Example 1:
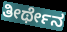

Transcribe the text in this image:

ತೀರ್ಥೇನ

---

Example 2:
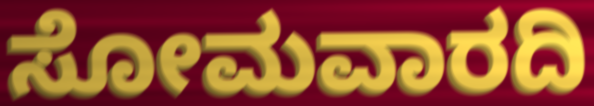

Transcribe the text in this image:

ಸೋಮವಾರದಿ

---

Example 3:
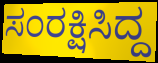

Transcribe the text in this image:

ಸಂರಕ್ಷಿಸಿದ್ದ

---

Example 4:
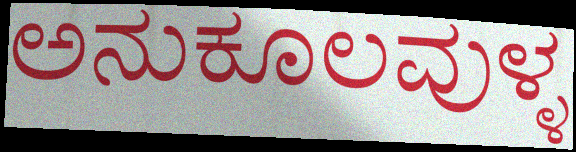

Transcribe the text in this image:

ಅನುಕೂಲವುಳ್ಳ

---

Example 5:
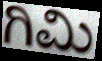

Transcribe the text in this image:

ಗಿಮಿ